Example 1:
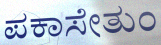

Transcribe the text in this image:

ಪಕಾಸೇತುಂ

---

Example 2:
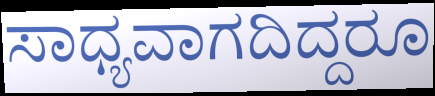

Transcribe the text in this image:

ಸಾಧ್ಯವಾಗದಿದ್ದರೂ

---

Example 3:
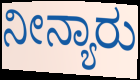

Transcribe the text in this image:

ನೀನ್ಯಾರು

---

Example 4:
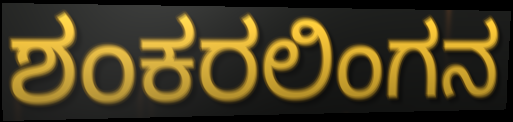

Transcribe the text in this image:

ಶಂಕರಲಿಂಗನ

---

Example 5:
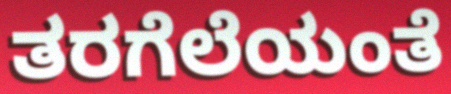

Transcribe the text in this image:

ತರಗೆಲೆಯಂತೆ